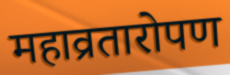
महाव्रतारोपण